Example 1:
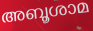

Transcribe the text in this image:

അബൂശാമ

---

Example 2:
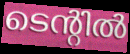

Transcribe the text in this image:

ടെന്റിൽ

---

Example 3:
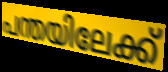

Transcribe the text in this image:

പന്തയിലേക്ക്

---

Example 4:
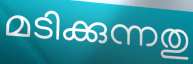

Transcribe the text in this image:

മടിക്കുന്നതു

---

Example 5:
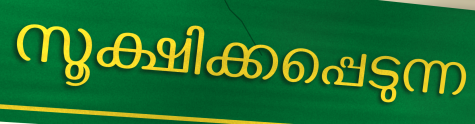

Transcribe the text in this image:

സൂക്ഷിക്കപ്പെടുന്ന